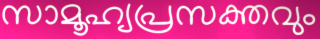
സാമൂഹ്യപ്രസക്തവും